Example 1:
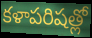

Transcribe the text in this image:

కళాపరిషత్లో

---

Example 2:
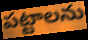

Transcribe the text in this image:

పట్టాలను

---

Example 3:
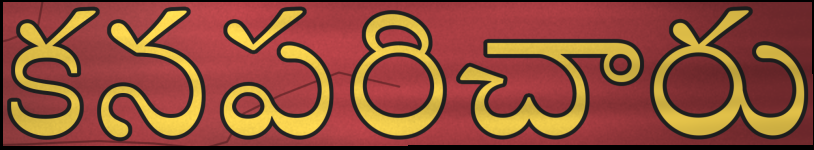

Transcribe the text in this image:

కనపరిచారు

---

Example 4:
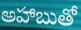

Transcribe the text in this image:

అహాబుతో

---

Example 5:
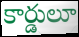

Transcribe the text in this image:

కార్డులూ